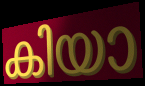
കിയാ